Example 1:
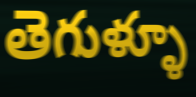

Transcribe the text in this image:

తెగుళ్ళూ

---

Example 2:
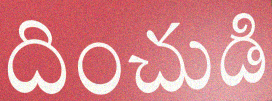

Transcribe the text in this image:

దించుడి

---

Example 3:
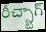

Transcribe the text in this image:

రీచ్స్టాగ్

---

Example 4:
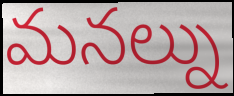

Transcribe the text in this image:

మనల్ను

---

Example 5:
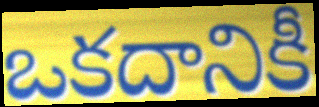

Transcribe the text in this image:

ఒకదానికీ